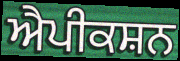
ਐਪੀਕਸ਼ਨ